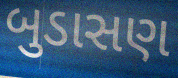
બુડાસણ